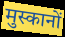
मुस्कानों